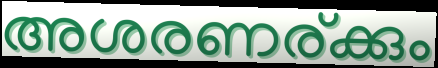
അശരണര്ക്കും